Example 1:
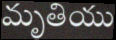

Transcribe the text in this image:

మృతియు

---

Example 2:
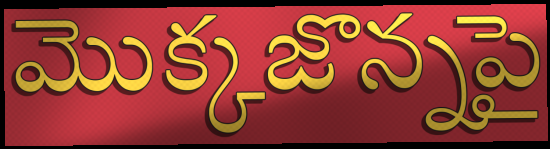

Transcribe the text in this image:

మొక్కజొన్నపై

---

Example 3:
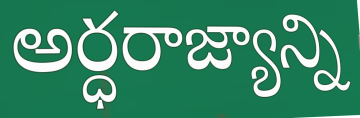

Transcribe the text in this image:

అర్ధరాజ్యాన్ని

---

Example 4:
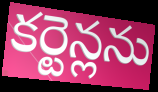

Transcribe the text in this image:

కర్టెన్లను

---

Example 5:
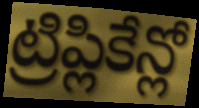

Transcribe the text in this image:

ట్రిప్లికేన్లో